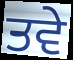
ਤਵੇ